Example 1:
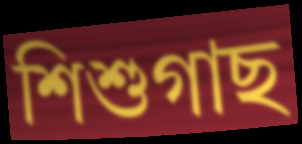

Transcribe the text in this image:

শিশুগাছ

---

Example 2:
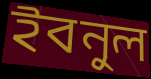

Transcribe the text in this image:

ইবনুল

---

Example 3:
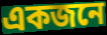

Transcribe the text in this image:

একজনে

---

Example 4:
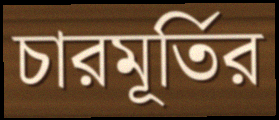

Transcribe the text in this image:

চারমূর্তির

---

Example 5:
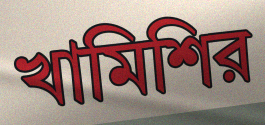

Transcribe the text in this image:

খামিশির